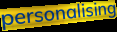
personalising